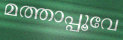
മത്താപ്പൂവേ